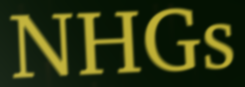
NHGs